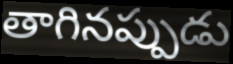
తాగినప్పుడు